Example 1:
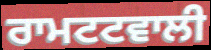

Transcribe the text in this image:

ਰਾਮਟਟਵਾਲੀ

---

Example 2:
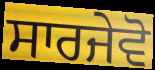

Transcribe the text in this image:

ਸਾਰਜੇਵੋ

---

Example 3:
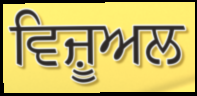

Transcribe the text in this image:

ਵਿਜ਼ੂਅਲ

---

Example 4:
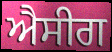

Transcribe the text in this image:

ਐਸੀਗ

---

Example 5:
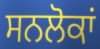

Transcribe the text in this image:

ਸਨਲੋਕਾਂ